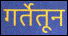
गर्तेतून